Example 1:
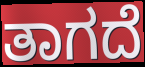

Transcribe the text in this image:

ತಾಗದೆ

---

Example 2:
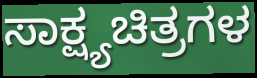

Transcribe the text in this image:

ಸಾಕ್ಷ್ಯಚಿತ್ರಗಳ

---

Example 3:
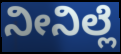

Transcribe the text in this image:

ನೀನಿಲ್ಲೆ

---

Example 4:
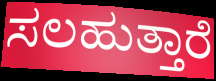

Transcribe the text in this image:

ಸಲಹುತ್ತಾರೆ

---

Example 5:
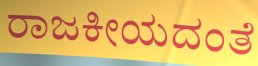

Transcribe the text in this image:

ರಾಜಕೀಯದಂತೆ